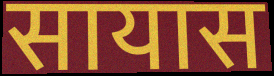
सायास